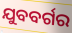
ଯୁବବର୍ଗର